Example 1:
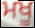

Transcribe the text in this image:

ਮਖੂ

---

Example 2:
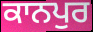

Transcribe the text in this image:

ਕਾਨਪੁਰ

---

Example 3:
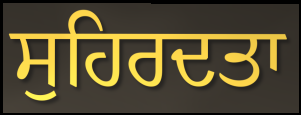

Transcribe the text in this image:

ਸੁਹਿਰਦਤਾ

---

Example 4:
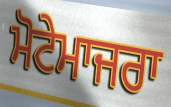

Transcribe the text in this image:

ਮੋਟੇਮਾਜਰਾ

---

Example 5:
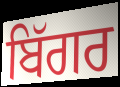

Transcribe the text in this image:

ਬਿੱਗਰ